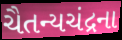
ચૈતન્યચંદ્રના